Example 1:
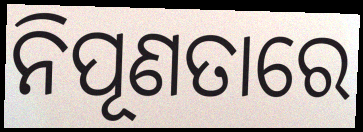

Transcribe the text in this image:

ନିପୂଣତାରେ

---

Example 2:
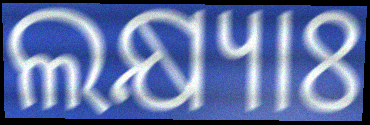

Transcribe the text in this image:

ଲକ୍ଷ୍ୟାଃ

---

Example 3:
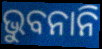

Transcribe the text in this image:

ଭୁବନାନି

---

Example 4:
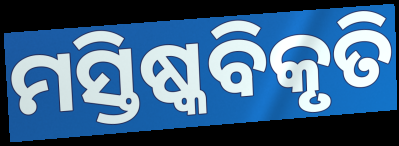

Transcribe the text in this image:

ମସ୍ତିଷ୍କବିକୃତି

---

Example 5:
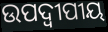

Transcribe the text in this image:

ଉପଦ୍ଵୀପୀୟ